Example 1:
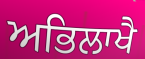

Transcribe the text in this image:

ਅਭਿਲਾਖੈ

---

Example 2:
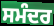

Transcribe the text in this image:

ਸਮੰਦਰ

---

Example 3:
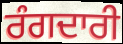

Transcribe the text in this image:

ਰੰਗਦਾਰੀ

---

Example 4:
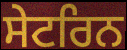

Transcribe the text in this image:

ਸੇਟਰਿਨ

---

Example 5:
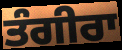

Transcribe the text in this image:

ਤੰਗੀਰਾ